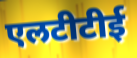
एलटीटीई